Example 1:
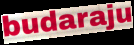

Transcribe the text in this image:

budaraju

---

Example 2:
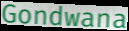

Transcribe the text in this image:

Gondwana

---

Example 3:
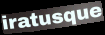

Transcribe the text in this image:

iratusque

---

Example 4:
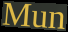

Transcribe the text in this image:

Mun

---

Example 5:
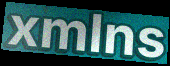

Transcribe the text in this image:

xmlns